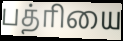
பத்ரியை